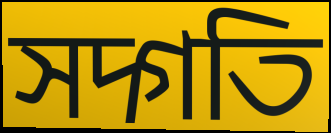
সদ্গতি